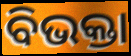
ବିଭକ୍ତା